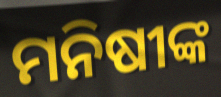
ମନିଷୀଙ୍କ